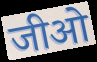
जीओ